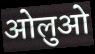
ओलुओ